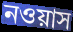
নওয়াস